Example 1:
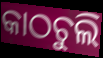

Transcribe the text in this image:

କାଠଚୁଲି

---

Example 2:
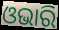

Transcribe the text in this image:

ଓଭାରି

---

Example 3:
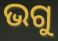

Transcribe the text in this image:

ଭଗୁ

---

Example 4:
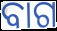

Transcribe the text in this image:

ବାଗ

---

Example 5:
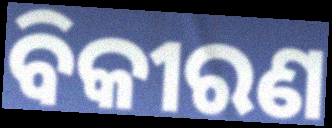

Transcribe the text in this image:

ବିକୀରଣ